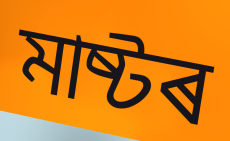
মাষ্টৰ